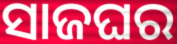
ସାଜଘର